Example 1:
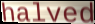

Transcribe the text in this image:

halved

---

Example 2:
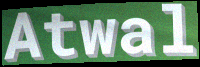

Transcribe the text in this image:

Atwal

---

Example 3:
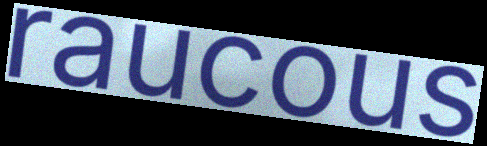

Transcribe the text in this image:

raucous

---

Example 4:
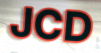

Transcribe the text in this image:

JCD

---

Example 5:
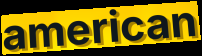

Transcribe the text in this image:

american